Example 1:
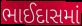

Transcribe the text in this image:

ભાઈદાસમાં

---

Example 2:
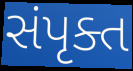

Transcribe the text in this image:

સંપૃક્ત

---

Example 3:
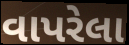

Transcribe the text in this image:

વાપરેલા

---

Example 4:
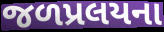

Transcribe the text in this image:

જળપ્રલયના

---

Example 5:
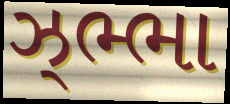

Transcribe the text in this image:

ઝ્ભ્ભા